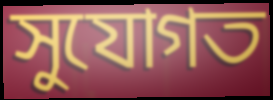
সুযোগত